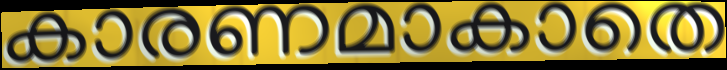
കാരണമാകാതെ